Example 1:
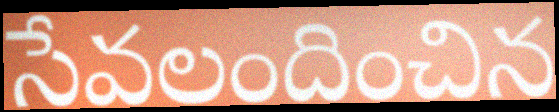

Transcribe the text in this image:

సేవలందించిన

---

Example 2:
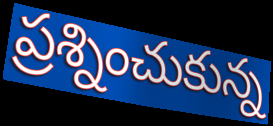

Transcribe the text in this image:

ప్రశ్నించుకున్న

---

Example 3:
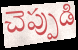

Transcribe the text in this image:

చెప్పుడి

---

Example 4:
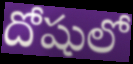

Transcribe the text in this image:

దోషులో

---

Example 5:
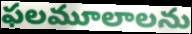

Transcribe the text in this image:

ఫలమూలాలను